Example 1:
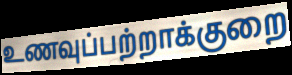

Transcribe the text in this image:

உணவுப்பற்றாக்குறை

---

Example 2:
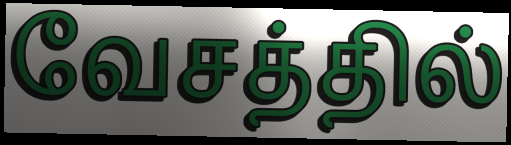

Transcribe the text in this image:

வேசத்தில்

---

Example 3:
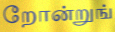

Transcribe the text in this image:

றோன்றுங்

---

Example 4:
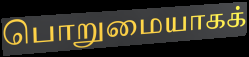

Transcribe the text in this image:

பொறுமையாகக்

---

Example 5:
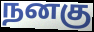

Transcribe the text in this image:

நனகு